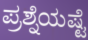
ಪ್ರಶ್ನೆಯಷ್ಟೆ